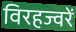
विरहज्वरें